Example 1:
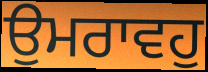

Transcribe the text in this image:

ਉਮਰਾਵਹੁ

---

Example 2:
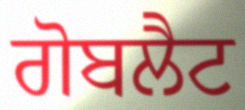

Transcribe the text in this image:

ਗੋਬਲੈਟ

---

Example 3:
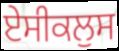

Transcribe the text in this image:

ਏਸੀਕਲੁਸ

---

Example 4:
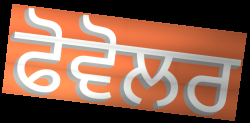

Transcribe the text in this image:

ਫੋਵੋਲਰ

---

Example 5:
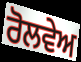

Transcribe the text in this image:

ਰੋਲਵੇਅ